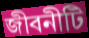
জীবনীটি